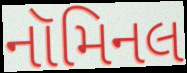
નૉમિનલ